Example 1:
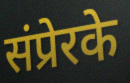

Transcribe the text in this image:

संप्रेरके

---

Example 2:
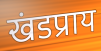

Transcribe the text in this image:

खंडप्राय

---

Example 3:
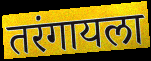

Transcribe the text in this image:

तरंगायला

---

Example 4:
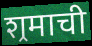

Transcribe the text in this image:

श्रमाची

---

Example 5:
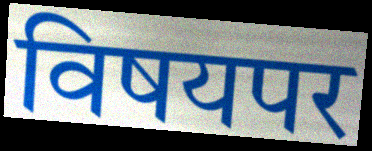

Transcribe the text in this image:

विषयपर